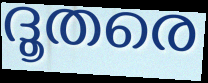
ദൂതരെ